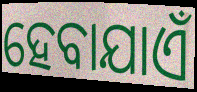
ହେବାଯାଏଁ